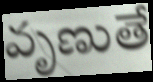
వృణుతే